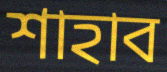
শাহাব